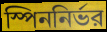
স্পিননির্ভর